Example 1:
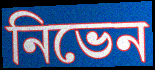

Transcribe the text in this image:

নিভেন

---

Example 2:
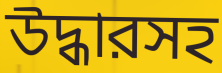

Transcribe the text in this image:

উদ্ধারসহ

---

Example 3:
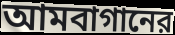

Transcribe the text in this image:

আমবাগানের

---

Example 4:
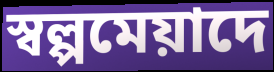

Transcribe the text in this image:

স্বল্পমেয়াদে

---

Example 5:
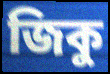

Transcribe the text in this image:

জিকু